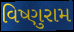
વિષ્ણુરામ